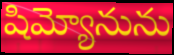
షిమ్యోనును